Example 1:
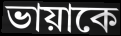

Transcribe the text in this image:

ভায়াকে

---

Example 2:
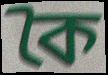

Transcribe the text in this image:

কৈ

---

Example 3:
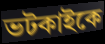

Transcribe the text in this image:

ভটকাইকে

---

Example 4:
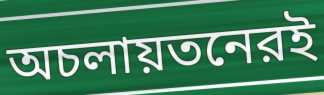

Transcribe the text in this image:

অচলায়তনেরই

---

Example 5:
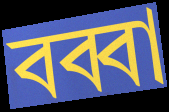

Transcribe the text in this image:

বব্বা